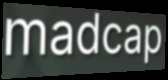
madcap